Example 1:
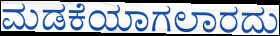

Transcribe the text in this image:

ಮಡಕೆಯಾಗಲಾರದು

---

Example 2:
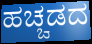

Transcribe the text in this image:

ಹಚ್ಚಡದ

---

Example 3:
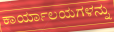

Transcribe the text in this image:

ಕಾರ್ಯಾಲಯಗಳನ್ನು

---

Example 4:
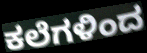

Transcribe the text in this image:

ಕಲೆಗಳಿಂದ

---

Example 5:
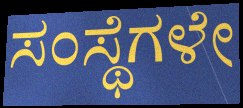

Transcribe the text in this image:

ಸಂಸ್ಥೆಗಳೇ